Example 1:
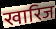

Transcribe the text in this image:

खारिज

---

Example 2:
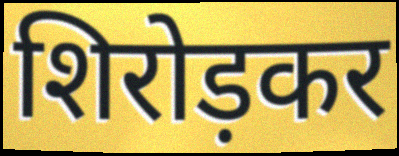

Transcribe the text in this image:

शिरोड़कर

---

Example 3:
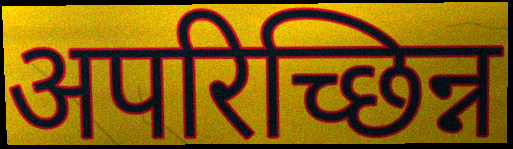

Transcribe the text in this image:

अपरिच्छिन्न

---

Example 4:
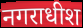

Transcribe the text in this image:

नगराधीश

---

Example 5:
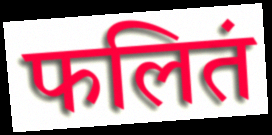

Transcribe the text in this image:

फलितं